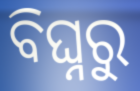
ବିଘ୍ନରୁ